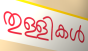
തുള്ളികൾ